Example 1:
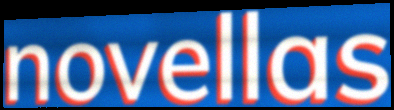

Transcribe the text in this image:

novellas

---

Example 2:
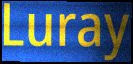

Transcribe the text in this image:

Luray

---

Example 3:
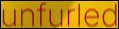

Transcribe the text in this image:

unfurled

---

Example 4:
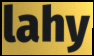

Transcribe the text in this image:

lahy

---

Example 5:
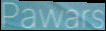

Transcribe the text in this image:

Pawars